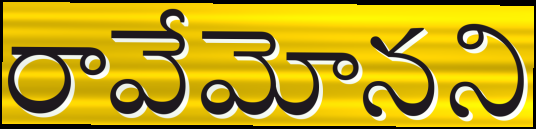
రావేమోనని